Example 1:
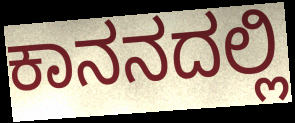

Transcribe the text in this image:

ಕಾನನದಲ್ಲಿ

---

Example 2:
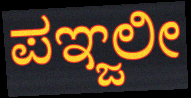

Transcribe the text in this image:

ಪಞ್ಜಲೀ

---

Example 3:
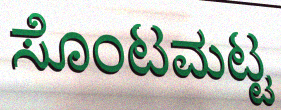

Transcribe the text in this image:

ಸೊಂಟಮಟ್ಟ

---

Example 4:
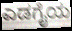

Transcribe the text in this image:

ಎಡಗೈಯ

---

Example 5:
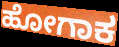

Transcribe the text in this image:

ಹೋಗಾಕ